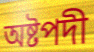
অষ্টপদী